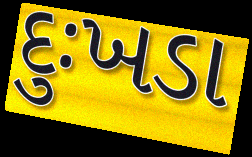
દુઃખડા